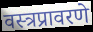
वस्त्रप्रावरणे